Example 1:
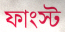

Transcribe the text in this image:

ফাংস্ট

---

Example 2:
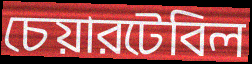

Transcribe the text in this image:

চেয়ারটেবিল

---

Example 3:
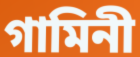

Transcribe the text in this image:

গামিনী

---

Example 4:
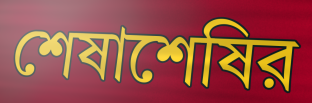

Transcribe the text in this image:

শেষাশেষির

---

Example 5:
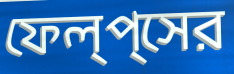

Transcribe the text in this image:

ফেল্‌প্‌সের